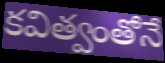
కవిత్వంతోనే